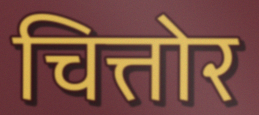
चित्तोर